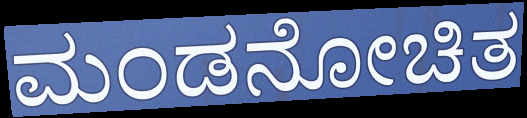
ಮಂಡನೋಚಿತ